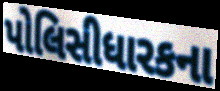
પોલિસીધારકના